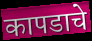
कापडाचे